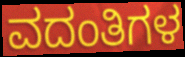
ವದಂತಿಗಳ